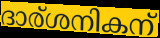
ദാര്ശനികന്